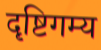
दृष्टिगम्य